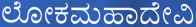
ಲೋಕಮಹಾದೇವಿ